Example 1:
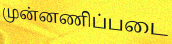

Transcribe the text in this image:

முன்னணிப்படை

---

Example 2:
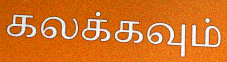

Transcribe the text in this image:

கலக்கவும்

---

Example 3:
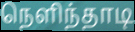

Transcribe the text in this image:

நெளிந்தாடி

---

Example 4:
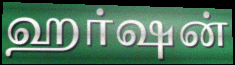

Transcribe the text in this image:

ஹர்ஷன்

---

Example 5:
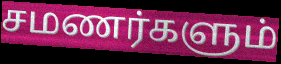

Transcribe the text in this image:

சமணர்களும்